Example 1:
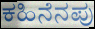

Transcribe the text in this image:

ಕಹಿನೆನಪು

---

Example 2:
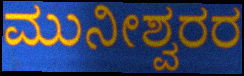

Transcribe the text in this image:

ಮುನೀಶ್ವರರ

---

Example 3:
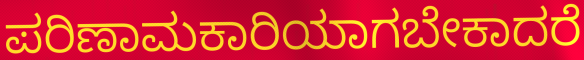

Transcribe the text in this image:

ಪರಿಣಾಮಕಾರಿಯಾಗಬೇಕಾದರೆ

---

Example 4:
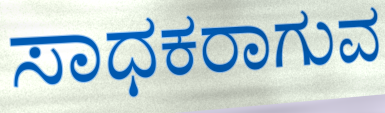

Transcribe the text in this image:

ಸಾಧಕರಾಗುವ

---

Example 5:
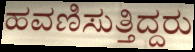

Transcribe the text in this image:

ಹವಣಿಸುತ್ತಿದ್ದರು